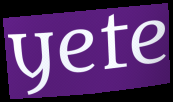
yete